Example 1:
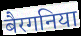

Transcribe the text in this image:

बैरगनिया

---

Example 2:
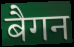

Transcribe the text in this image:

बैगन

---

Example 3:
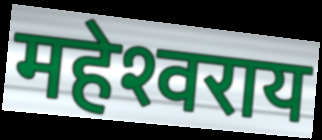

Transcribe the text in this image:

महेश्वराय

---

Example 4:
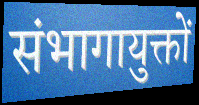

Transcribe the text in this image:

संभागायुक्तों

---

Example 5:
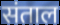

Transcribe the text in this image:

संताल